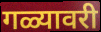
गळ्यावरी